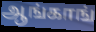
ஆங்காங்